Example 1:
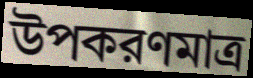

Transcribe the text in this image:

উপকরণমাত্র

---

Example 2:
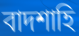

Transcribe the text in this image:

বাদশাহি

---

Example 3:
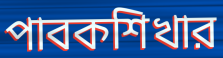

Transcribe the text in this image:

পাবকশিখার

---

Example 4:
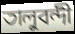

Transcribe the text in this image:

তালুবন্দী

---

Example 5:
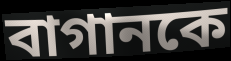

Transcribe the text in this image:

বাগানকে